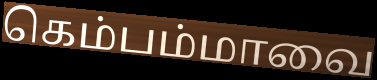
கெம்பம்மாவை